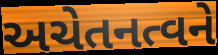
અચેતનત્વને